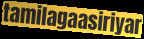
tamilagaasiriyar